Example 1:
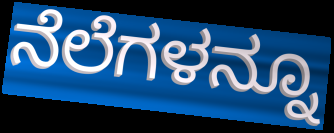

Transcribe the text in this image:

ನೆಲೆಗಳನ್ನೂ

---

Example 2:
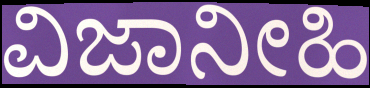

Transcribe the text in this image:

ವಿಜಾನೀಹಿ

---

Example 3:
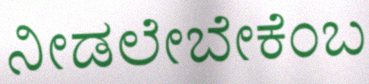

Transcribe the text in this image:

ನೀಡಲೇಬೇಕೆಂಬ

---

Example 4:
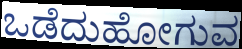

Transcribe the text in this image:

ಒಡೆದುಹೋಗುವ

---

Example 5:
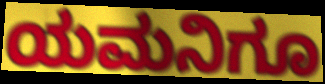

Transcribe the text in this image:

ಯಮನಿಗೂ